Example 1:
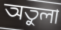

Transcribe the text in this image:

অতুলা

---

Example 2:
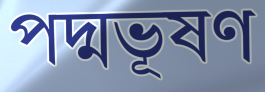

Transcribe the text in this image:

পদ্মভূষণ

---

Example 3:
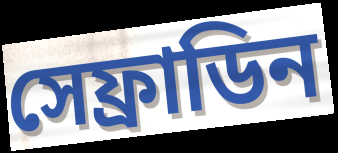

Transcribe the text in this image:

সেফ্রাডিন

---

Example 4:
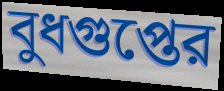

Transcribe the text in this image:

বুধগুপ্তের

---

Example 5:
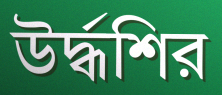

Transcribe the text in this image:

উর্দ্ধশির